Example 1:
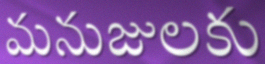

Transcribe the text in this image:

మనుజులకు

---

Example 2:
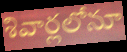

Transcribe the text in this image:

శివార్లలోనూ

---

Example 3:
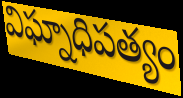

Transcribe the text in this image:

విఘ్నాధిపత్యం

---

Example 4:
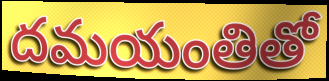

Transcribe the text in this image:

దమయంతితో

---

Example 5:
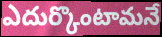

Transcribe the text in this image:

ఎదుర్కొంటామనే